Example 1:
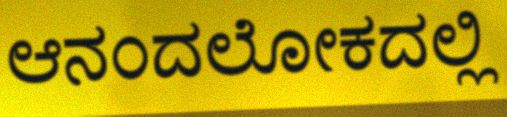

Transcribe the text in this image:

ಆನಂದಲೋಕದಲ್ಲಿ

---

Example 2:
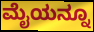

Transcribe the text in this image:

ಮೈಯನ್ನೂ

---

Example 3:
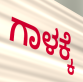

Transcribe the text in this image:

ಗಾಳಕ್ಕೆ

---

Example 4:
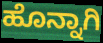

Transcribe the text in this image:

ಹೊನ್ನಾಗಿ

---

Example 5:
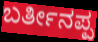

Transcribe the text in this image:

ಬರ್ತೀನಪ್ಪ